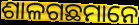
ଶାଳଗଛମାନେ